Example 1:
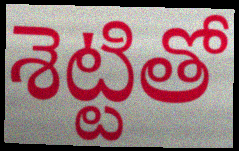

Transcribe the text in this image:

శెట్టితో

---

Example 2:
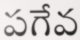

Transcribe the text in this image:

పగేవ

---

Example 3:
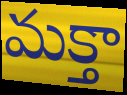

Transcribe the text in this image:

మక్తా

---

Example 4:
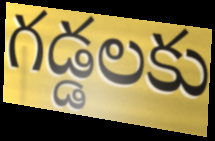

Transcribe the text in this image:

గడ్డలకు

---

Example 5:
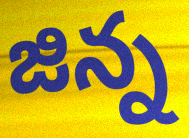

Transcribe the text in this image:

జిన్న